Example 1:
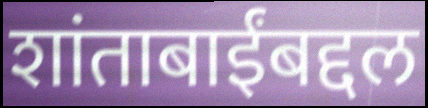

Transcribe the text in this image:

शांताबाईंबद्दल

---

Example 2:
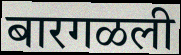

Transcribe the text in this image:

बारगळली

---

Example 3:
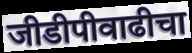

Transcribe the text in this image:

जीडीपीवाढीचा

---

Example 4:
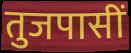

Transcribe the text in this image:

तुजपासीं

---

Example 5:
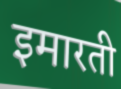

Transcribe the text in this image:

इमारती